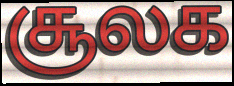
சூலக